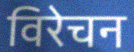
विरेचन